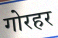
गोरहर